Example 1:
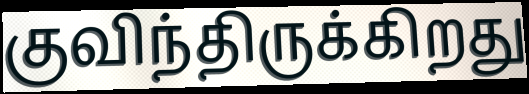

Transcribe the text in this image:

குவிந்திருக்கிறது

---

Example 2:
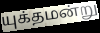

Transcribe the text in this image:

யுக்தமன்று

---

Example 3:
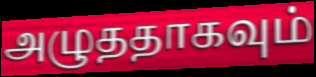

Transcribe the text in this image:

அழுததாகவும்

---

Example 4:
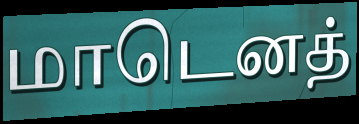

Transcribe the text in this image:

மாடெனத்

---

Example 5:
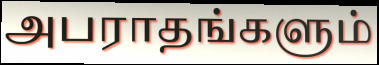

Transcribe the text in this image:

அபராதங்களும்